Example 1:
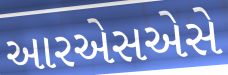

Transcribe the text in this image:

આરએસએસે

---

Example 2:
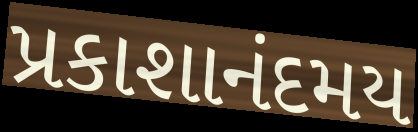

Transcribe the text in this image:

પ્રકાશાનંદમય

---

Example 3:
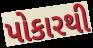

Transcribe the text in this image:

પોકારથી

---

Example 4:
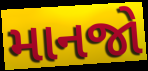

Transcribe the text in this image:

માનજો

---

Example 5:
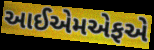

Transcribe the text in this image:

આઈએમએફએ